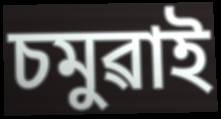
চমুৱাই